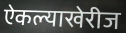
ऐकल्याखेरीज